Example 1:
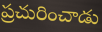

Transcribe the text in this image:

ప్రచురించాడు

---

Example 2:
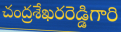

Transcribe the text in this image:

చంద్రశేఖరరెడ్డిగారి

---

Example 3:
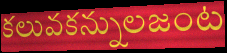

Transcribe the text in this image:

కలువకన్నులజంట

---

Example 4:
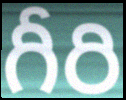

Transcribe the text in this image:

గీరి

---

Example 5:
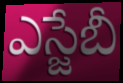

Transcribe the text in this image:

ఎస్జేబీ